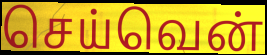
செய்வென்